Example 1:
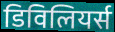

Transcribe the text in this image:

डिविलियर्स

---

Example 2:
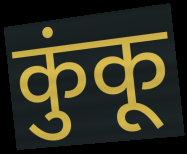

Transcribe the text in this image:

कुंकू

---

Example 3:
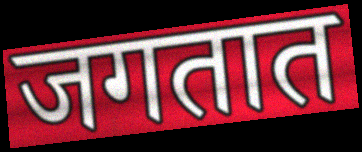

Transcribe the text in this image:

जगतात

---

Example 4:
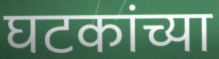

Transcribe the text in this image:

घटकांच्या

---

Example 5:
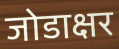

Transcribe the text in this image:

जोडाक्षर